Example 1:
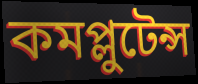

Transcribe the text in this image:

কমপ্লুটেন্স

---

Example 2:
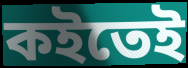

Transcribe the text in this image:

কইতেই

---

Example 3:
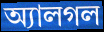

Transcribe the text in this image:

অ্যালগল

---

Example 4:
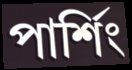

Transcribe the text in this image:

পার্শিং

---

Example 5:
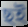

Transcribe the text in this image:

ছই